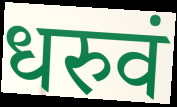
धरुवं